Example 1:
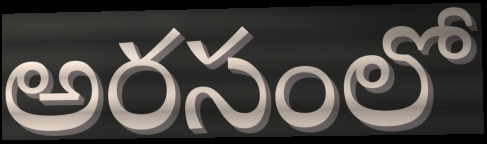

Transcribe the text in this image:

అరసంలో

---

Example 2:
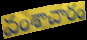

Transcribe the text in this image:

వంశాచారం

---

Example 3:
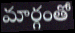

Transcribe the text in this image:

మార్గంతో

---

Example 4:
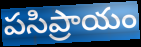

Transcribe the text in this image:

పసిప్రాయం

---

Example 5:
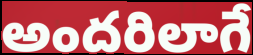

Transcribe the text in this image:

అందరిలాగే